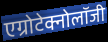
एग्रोटेक्नोलॉजी